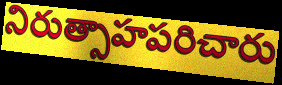
నిరుత్సాహపరిచారు